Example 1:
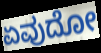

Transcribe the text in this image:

ಏವುದೋ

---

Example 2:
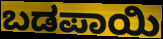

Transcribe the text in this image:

ಬಡಪಾಯಿ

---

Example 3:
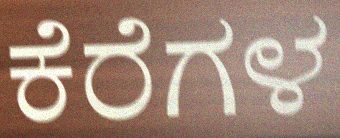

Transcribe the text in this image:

ಕೆರೆಗಳ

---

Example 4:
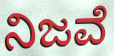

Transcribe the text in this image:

ನಿಜವೆ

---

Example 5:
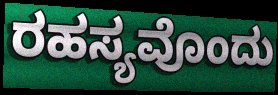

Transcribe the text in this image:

ರಹಸ್ಯವೊಂದು